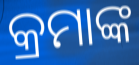
କ୍ରମାଙ୍କ